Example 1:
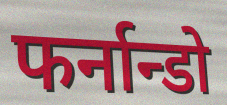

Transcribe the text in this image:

फर्नान्डो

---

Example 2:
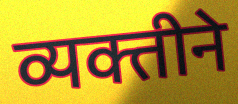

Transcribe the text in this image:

व्यक्तीने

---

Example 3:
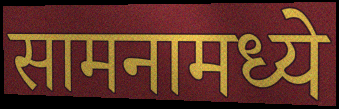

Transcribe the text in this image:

सामनामध्ये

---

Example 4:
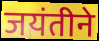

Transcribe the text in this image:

जयंतीने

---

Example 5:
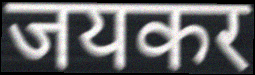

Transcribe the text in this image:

जयकर